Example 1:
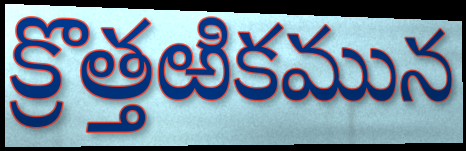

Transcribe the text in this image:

క్రొత్తఱికమున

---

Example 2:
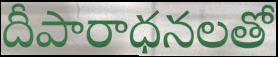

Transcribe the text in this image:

దీపారాధనలతో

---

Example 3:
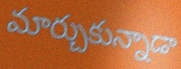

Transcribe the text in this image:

మార్చుకున్నాడా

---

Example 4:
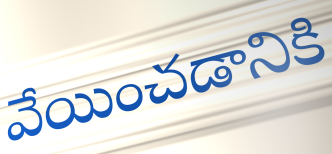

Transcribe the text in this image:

వేయించడానికి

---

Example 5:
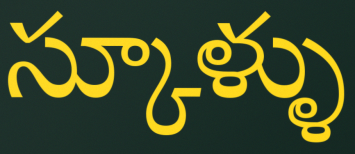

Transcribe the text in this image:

స్కూళ్ళు